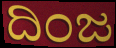
ದಿಂಜ